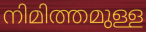
നിമിത്തമുള്ള